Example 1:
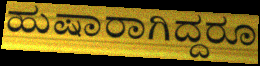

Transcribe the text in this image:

ಹುಷಾರಾಗಿದ್ದರೂ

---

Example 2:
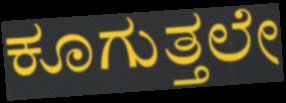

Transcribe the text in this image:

ಕೂಗುತ್ತಲೇ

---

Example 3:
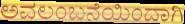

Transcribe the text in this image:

ಅವಲಂಬನೆಯಿಂದಾಗಿ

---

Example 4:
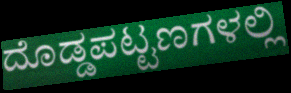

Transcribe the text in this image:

ದೊಡ್ಡಪಟ್ಟಣಗಳಲ್ಲಿ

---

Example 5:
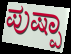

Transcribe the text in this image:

ಪುಷ್ಪಾ